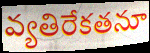
వ్యతిరేకతనూ